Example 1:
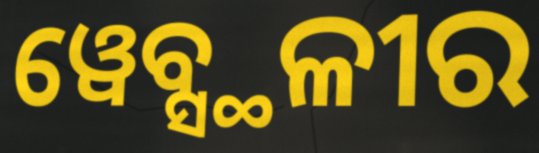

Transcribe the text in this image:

ୱେବ୍ସ୍ଥଳୀର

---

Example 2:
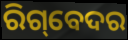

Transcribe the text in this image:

ରିଗ୍‌ବେଦର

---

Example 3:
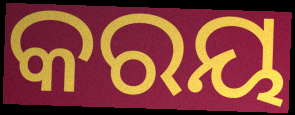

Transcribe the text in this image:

କରୟ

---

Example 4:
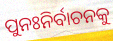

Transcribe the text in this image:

ପୁନଃନିର୍ବାଚନକୁ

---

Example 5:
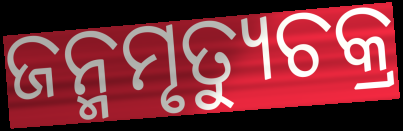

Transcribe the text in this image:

ଜନ୍ମମୃତ୍ୟୁଚକ୍ର